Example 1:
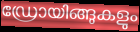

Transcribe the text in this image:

ഡ്രോയിങ്ങുകളും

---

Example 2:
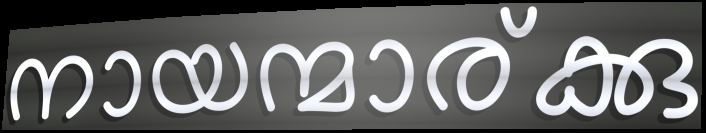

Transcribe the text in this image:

നായന്മാര്ക്കു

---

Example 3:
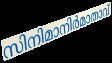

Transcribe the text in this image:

സിനിമാനിർമാതാവ്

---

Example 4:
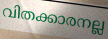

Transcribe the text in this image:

വിതക്കാരനല്ല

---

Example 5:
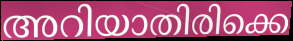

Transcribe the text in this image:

അറിയാതിരിക്കെ